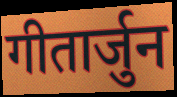
गीतार्जुन